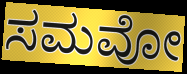
ಸಮವೋ